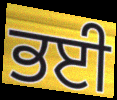
ਭਈ